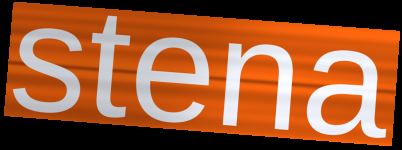
stena